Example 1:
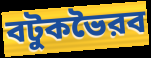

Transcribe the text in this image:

বটুকভৈরব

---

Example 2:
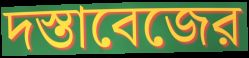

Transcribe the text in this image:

দস্তাবেজের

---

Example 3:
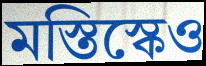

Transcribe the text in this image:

মস্তিস্কেও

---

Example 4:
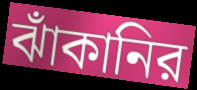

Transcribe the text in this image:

ঝাঁকানির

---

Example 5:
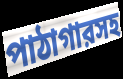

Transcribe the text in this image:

পাঠাগারসহ